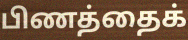
பிணத்தைக்